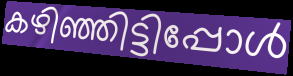
കഴിഞ്ഞിട്ടിപ്പോൾ